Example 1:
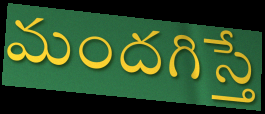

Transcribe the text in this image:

మందగిస్తే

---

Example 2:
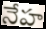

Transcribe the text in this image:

నేహ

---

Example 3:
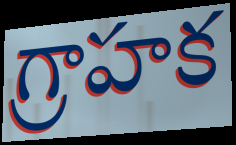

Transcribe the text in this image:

గ్రాహక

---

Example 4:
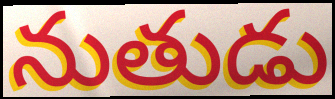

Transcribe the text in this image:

నుతుడు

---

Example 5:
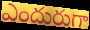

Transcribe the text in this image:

ఎందురుగా